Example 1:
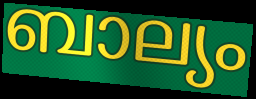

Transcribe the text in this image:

ബാല്യം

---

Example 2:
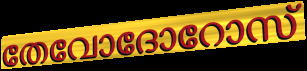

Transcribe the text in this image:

തേവോദോറോസ്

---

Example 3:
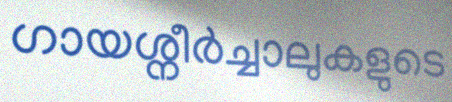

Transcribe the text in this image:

ഗായശ്നീർച്ചാലുകളുടെ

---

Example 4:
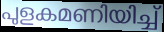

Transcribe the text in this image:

പുളകമണിയിച്ച്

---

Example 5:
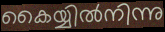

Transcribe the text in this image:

കൈയ്യിൽനിന്നു